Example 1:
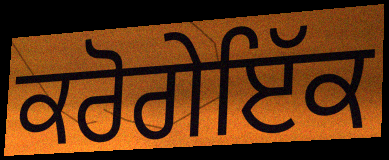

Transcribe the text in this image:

ਕਰੋਗੇਇੱਕ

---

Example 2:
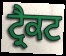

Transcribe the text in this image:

ਟ੍ਰੈਕਟ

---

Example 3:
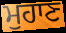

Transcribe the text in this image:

ਮੁਹਾਣ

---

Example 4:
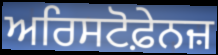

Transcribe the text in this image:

ਅਰਿਸਟੋਫ਼ੇਨਜ਼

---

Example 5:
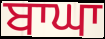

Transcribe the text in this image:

ਬਾਘਾ